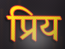
प्रिय